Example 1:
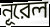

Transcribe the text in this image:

নূরেল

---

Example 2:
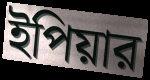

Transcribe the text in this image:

ইপিয়ার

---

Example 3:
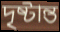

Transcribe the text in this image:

দৃষ্টান্ত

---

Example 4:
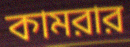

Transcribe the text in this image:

কামরার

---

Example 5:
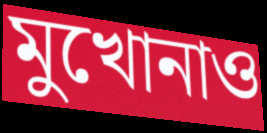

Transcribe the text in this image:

মুখোনাও